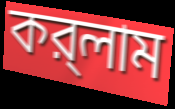
কর্‌লাম